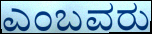
ಎಂಬವರು